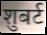
शुबर्ट